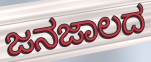
ಜನಜಾಲದ